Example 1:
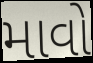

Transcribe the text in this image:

માવો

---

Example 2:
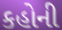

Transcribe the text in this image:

કહોની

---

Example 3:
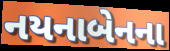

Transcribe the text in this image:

નયનાબેનના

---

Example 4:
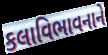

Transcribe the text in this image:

કલાવિભાવનાને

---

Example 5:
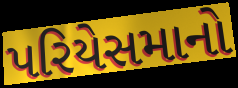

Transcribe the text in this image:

પરિયેસમાનો